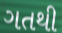
ગતથી